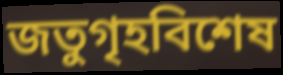
জতুগৃহবিশেষ